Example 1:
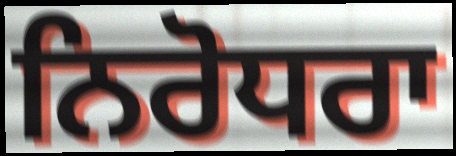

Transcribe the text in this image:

ਨਿਰੋਧਰਾ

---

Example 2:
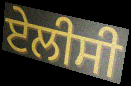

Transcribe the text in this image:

ਏਲੀਸੀ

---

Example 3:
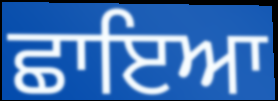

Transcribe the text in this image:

ਛਾਇਆ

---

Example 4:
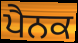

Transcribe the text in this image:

ਪੈਨਕ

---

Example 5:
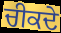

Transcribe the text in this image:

ਚੀਕਦੇ